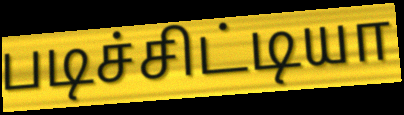
படிச்சிட்டியா